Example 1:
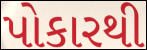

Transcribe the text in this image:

પોકારથી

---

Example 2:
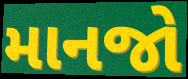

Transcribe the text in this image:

માનજો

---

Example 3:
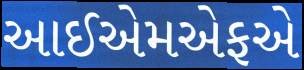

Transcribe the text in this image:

આઈએમએફએ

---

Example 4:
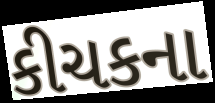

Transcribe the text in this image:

કીચકના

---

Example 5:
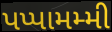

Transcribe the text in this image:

પપ્પામમ્મી